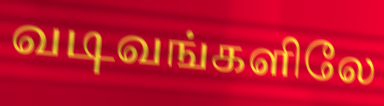
வடிவங்களிலே